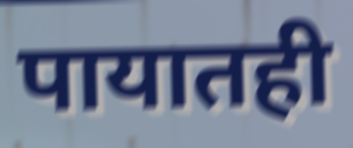
पायातही